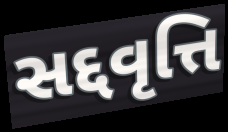
સદ્દવૃત્તિ